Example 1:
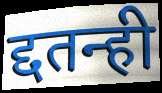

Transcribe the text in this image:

द्दतन्ही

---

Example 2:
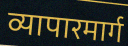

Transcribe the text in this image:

व्यापारमार्ग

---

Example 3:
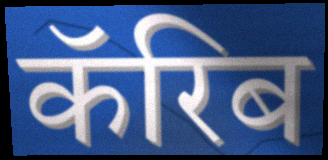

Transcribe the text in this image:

कॅरिब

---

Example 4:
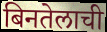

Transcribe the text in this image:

बिनतेलाची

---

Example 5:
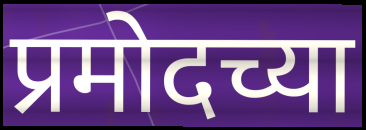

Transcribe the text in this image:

प्रमोदच्या